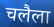
चलैला